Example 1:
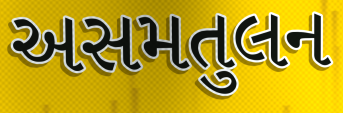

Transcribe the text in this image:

અસમતુલન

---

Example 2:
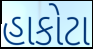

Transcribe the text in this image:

હાકોટા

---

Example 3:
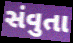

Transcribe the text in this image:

સંવુતા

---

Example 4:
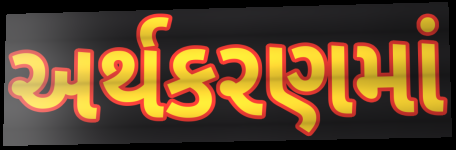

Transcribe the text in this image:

અર્થકરણમાં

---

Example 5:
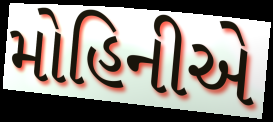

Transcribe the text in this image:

મોહિનીએ